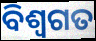
ବିଶ୍ୱଗତ